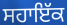
ਸਹਾਇੱਕ